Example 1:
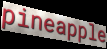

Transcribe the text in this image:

pineapple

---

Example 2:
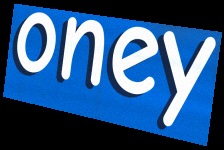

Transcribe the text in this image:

oney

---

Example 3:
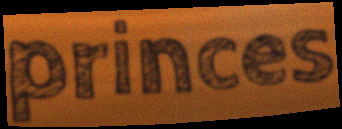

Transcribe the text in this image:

princes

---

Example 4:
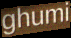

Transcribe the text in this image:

ghumi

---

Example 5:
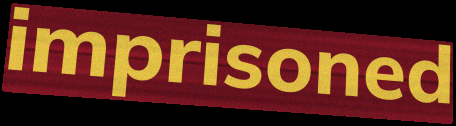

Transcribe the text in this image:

imprisoned